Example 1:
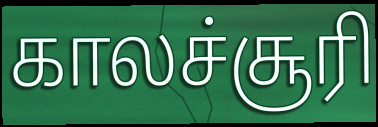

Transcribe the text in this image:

காலச்சூரி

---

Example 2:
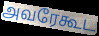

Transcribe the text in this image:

அவரேகூட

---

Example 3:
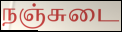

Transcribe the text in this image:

நஞ்சுடை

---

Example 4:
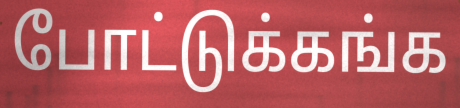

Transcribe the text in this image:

போட்டுக்கங்க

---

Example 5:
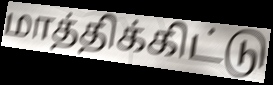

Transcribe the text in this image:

மாத்திக்கிட்டு